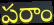
పరాం